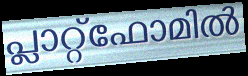
പ്ലാറ്റ്ഫോമിൽ